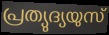
പ്രത്യുദ്യയുസ്